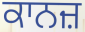
ਕਾਨਜ਼